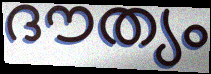
ദൗത്യം